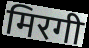
मिरगी